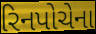
રિનપોચેના